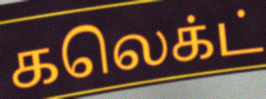
கலெக்ட்